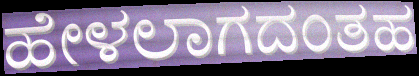
ಹೇಳಲಾಗದಂತಹ